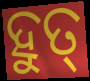
ହୁତ୍